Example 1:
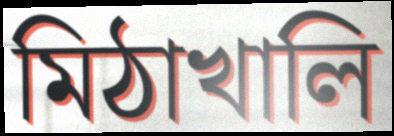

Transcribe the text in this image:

মিঠাখালি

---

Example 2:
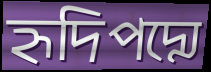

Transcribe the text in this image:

হৃদিপদ্মে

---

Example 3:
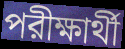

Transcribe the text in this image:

পরীক্ষার্থী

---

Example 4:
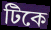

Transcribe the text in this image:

টিকে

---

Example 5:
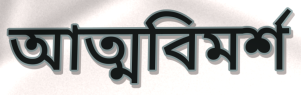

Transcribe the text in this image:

আত্মবিমর্শ